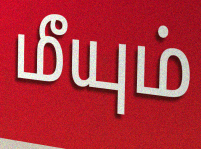
மீயும்